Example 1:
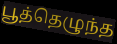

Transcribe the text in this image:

பூத்தெழுந்த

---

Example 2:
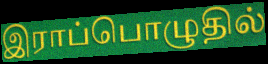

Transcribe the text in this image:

இராப்பொழுதில்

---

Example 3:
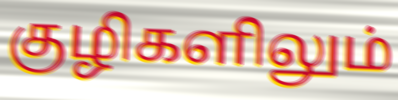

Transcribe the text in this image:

குழிகளிலும்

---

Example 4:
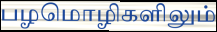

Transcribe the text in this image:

பழமொழிகளிலும்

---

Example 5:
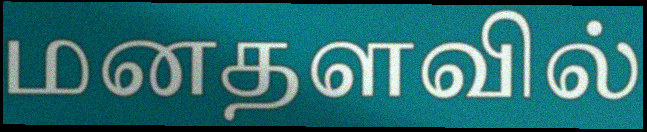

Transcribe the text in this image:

மனதளவில்